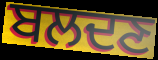
ਬਲਦਣ